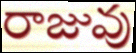
రాజువు